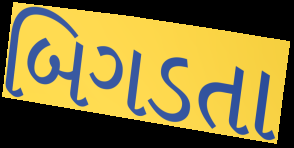
બિગડતા